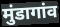
मुंडागांव